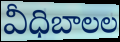
వీధిబాలల